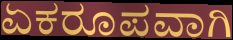
ಏಕರೂಪವಾಗಿ